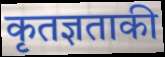
कृतज्ञताकी